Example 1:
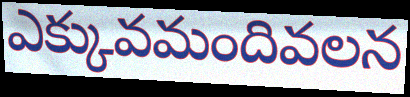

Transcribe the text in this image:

ఎక్కువమందివలన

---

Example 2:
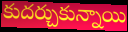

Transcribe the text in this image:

కుదర్చుకున్నాయి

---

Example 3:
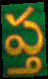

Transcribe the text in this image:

ప్త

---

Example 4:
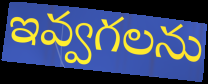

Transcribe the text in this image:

ఇవ్వగలను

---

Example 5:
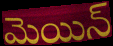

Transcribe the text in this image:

మెయిన్